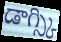
డాగ్స్కి